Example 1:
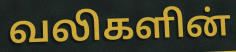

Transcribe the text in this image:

வலிகளின்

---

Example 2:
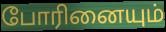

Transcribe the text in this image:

போரினையும்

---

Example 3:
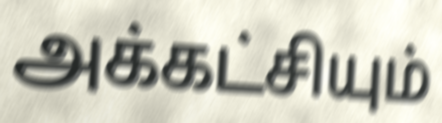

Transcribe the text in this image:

அக்கட்சியும்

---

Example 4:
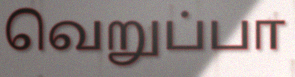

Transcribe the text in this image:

வெறுப்பா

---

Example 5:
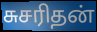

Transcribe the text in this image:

சுசரிதன்